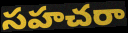
సహచరా